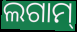
ଲଗାମ୍